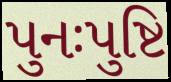
પુનઃપુષ્ટિ